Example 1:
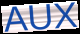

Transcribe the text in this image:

AUX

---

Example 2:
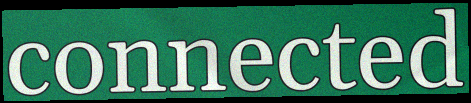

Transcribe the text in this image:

connected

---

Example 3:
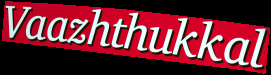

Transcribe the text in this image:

Vaazhthukkal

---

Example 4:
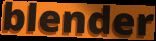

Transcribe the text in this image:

blender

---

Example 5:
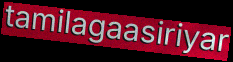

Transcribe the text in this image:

tamilagaasiriyar